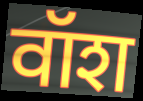
वॉश